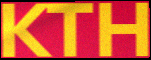
KTH